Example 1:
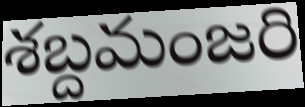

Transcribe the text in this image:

శబ్దమంజరి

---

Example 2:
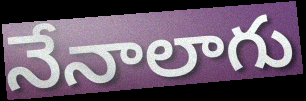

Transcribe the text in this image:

నేనాలాగు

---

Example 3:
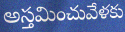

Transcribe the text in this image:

అస్తమించువేళకు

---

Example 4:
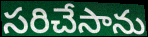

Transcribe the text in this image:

సరిచేసాను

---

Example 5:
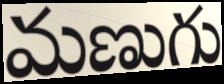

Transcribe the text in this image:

మణుగు